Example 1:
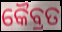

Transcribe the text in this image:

କୈବ୍ରତ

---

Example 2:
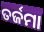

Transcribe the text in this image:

ତର୍ଜମା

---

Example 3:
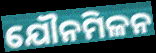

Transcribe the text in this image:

ଯୌନମିଳନ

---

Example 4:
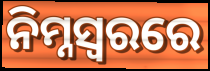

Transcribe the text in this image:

ନିମ୍ନସ୍ଵରରେ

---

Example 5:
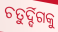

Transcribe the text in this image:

ଚତୁର୍ଦ୍ଦିଗକୁ